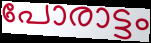
പോരാട്ടം